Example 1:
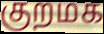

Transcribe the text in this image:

குறமக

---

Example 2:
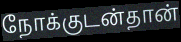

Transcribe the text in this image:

நோக்குடன்தான்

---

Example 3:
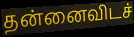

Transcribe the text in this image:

தன்னைவிடச்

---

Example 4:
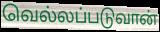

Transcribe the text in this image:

வெல்லப்படுவான்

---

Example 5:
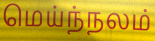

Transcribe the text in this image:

மெய்ந்நலம்